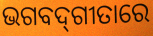
ଭଗବଦ୍‌ଗୀତାରେ